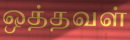
ஒத்தவள்